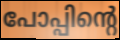
പോപ്പിന്റെ